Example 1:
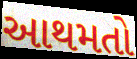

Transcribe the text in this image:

આથમતો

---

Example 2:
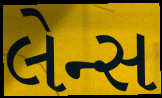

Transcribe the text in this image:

લેન્સ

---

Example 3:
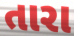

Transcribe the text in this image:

તારા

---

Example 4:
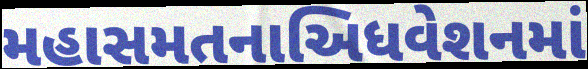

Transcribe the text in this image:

મહાસમતનાઅિધવેશનમાં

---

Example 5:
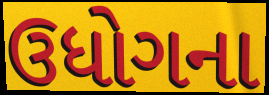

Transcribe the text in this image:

ઉધોગના